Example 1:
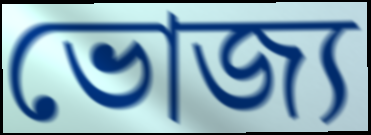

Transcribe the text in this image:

ভোজ্য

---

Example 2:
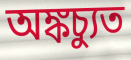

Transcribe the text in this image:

অঙ্কচ্যুত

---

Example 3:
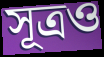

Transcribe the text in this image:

সূত্রও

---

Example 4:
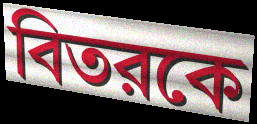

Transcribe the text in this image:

বিতরকে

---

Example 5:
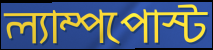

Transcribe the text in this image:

ল্যাম্পপোস্ট